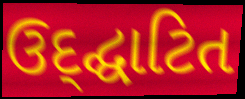
ઉદ્દ્ઘાટિત